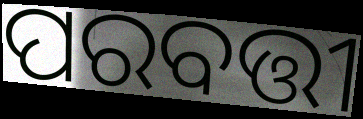
ପରବତ୍ତୀ